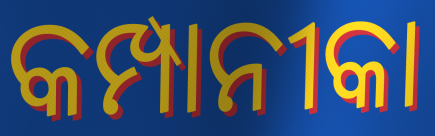
କମ୍ପାନୀକା